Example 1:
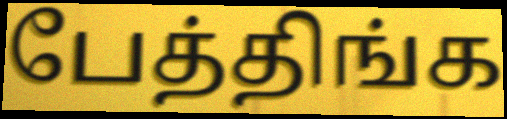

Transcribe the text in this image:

பேத்திங்க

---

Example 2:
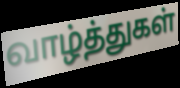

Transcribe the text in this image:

வாழ்த்துகள்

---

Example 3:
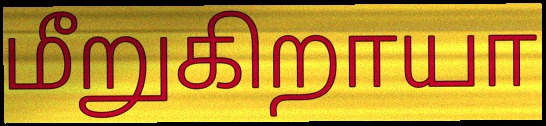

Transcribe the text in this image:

மீறுகிறாயா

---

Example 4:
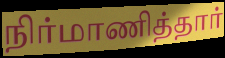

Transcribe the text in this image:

நிர்மாணித்தார்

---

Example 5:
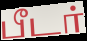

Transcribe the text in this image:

பீடர்